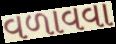
વળાવવા